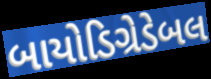
બાયોડિગ્રેડેબલ